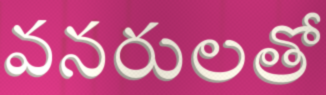
వనరులతో